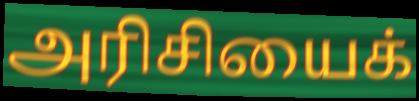
அரிசியைக்